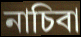
নাচিবা